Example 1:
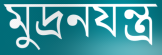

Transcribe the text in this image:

মুদ্রনযন্ত্র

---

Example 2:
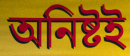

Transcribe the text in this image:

অনিষ্টই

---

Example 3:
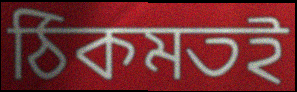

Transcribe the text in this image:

ঠিকমতই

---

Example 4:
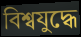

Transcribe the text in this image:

বিশ্বযুদ্ধে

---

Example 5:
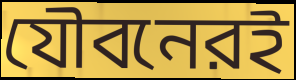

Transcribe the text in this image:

যৌবনেরই